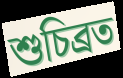
শুচিব্রত